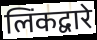
लिंकद्वारे